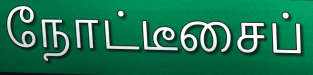
நோட்டீசைப்